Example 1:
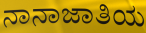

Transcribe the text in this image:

ನಾನಾಜಾತಿಯ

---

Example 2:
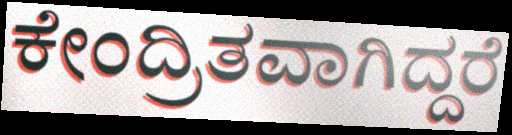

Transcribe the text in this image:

ಕೇಂದ್ರಿತವಾಗಿದ್ದರೆ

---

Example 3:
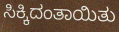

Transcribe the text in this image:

ಸಿಕ್ಕಿದಂತಾಯಿತು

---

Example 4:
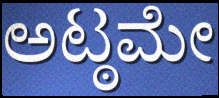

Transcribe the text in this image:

ಅಟ್ಠಮೇ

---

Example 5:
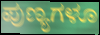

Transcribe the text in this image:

ಪುಣ್ಯಗಳೂ